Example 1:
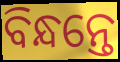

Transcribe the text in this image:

ବିନ୍ଧନ୍ତେ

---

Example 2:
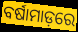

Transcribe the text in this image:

ବର୍ଷାମାଡ଼ରେ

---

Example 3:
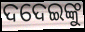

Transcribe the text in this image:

ଦଦେଇଙ୍କୁ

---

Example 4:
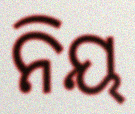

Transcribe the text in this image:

ନିୟ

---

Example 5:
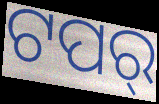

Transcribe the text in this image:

ଟପର୍